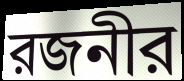
রজনীর